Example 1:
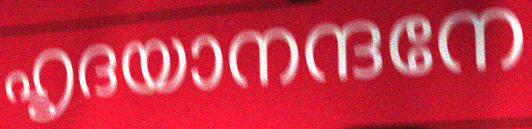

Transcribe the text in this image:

ഹൃദയാനന്ദനേ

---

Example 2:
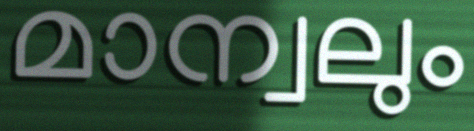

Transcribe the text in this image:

മാന്വലും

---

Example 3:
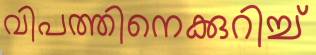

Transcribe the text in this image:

വിപത്തിനെക്കുറിച്ച്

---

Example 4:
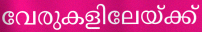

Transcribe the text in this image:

വേരുകളിലേയ്ക്ക്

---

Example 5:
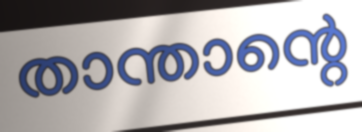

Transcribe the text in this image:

താന്താന്റെ